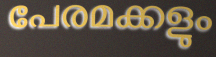
പേരമക്കളും